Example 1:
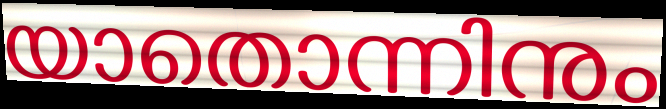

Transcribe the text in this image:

യാതൊന്നിനും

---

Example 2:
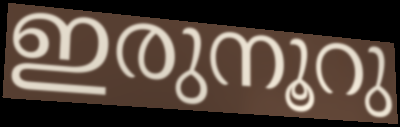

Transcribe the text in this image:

ഇരുനൂറു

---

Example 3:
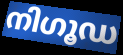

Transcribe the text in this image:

നിഗൂഡ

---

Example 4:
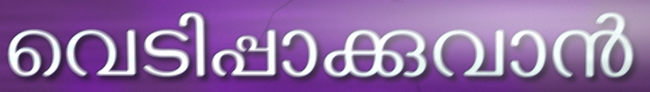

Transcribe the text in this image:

വെടിപ്പാക്കുവാൻ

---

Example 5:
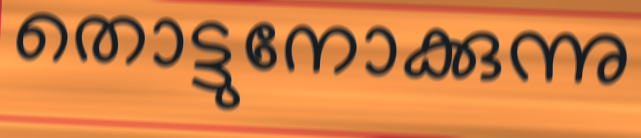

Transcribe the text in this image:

തൊട്ടുനോക്കുന്നു